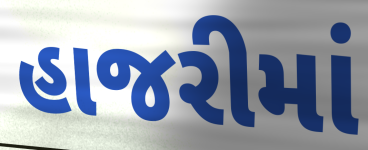
હાજરીમાં